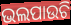
ଭଲପାଉଚି